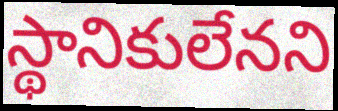
స్థానికులేనని